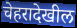
चेहरादेखील